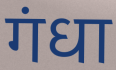
गंधा